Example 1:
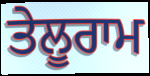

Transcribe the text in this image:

ਤੇਲੂਰਾਮ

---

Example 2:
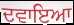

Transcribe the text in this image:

ਦਵਾਇਆ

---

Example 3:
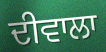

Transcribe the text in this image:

ਦੀਵਾਲਾ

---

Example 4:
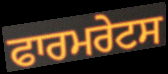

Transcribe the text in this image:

ਫਾਰਮਰੇਟਸ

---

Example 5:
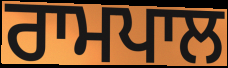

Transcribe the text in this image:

ਰਾਮਪਾਲ